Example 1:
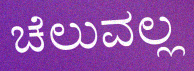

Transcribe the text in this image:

ಚೆಲುವಲ್ಲ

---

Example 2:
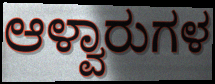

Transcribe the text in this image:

ಆಳ್ವಾರುಗಳ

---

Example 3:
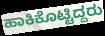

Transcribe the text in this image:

ಹಾಕಿಕೊಟ್ಟಿದ್ದರು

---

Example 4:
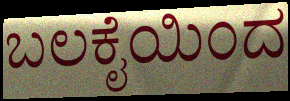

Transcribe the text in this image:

ಬಲಕೈಯಿಂದ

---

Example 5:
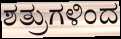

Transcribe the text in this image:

ಶತ್ರುಗಳಿಂದ